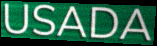
USADA